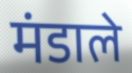
मंडाले